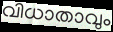
വിധാതാവും